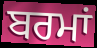
ਬਰਮਾਂ